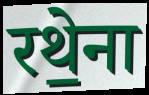
रथे॒ना